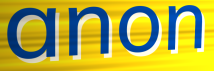
anon